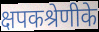
क्षपकश्रेणीके